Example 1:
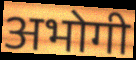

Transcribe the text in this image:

अभोगी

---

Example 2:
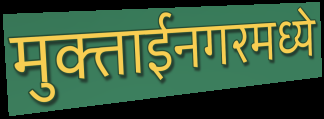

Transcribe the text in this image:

मुक्ताईनगरमध्ये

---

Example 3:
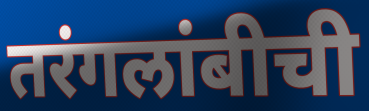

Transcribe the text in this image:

तरंगलांबीची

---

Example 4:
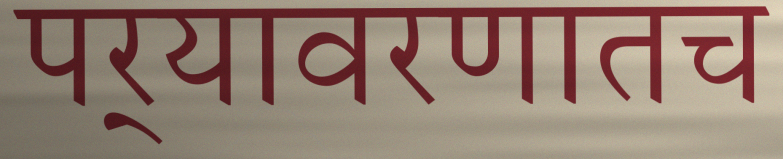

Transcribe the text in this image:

पर्यावरणातच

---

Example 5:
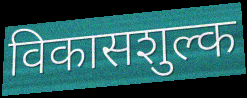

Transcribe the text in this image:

विकासशुल्क